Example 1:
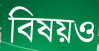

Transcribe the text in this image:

বিষয়ও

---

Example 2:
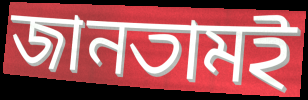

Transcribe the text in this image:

জানতামই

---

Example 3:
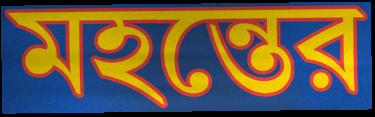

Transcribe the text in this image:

মহন্তের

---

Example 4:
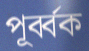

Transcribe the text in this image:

পূর্ব্বক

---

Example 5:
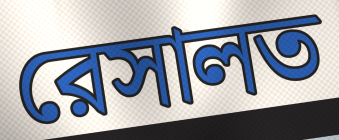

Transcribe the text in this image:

রেসালত